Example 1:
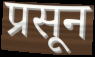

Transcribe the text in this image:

प्रसून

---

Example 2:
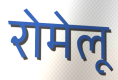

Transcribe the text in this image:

रोमेलू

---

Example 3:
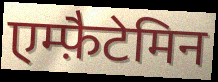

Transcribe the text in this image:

एम्फ़ैटेमिन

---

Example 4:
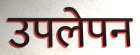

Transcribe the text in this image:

उपलेपन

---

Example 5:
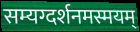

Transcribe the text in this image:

सम्यग्दर्शनमस्मयम्